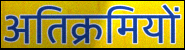
अतिक्रमियों